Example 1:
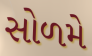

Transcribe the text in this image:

સોળમે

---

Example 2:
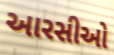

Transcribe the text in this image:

આરસીઓ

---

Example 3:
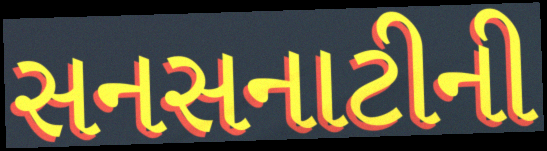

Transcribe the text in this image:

સનસનાટીની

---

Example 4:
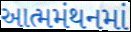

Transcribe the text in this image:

આત્મમંથનમાં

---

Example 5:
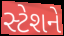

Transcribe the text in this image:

સ્ટેશને